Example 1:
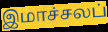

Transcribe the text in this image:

இமாச்சலப்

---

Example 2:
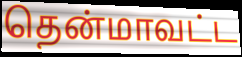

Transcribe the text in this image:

தென்மாவட்ட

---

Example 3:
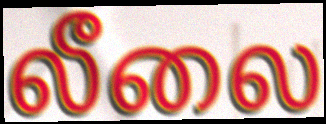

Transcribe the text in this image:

லீலை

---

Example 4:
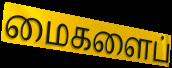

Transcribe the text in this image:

மைகளைப்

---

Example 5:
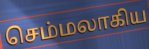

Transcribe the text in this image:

செம்மலாகிய